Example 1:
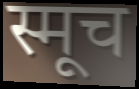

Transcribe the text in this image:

स्मूच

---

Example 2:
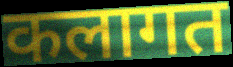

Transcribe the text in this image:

कलागत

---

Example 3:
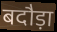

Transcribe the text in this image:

बदौड़ा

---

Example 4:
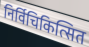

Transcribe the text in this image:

निर्विचिकित्सित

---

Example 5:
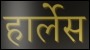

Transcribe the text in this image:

हार्लेस